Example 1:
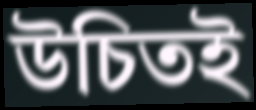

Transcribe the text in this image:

উচিতই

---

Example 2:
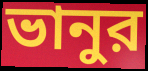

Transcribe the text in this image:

ভানুর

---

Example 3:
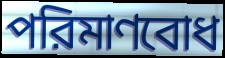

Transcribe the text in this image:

পরিমাণবোধ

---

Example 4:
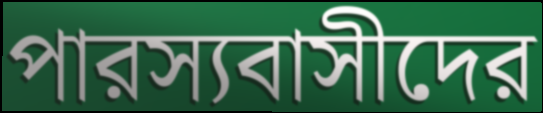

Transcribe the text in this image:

পারস্যবাসীদের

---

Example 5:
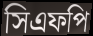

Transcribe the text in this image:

সিএফপি